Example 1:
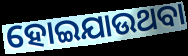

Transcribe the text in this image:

ହୋଇଯାଉଥବା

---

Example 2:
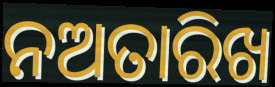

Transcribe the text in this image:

ନଅତାରିଖ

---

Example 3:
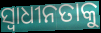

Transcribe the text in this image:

ସ୍ବାଧୀନତାକୁ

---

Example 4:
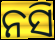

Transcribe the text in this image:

ନସି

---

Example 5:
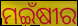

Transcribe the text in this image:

ମଇଁଷୀର